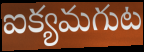
ఐక్యమగుట